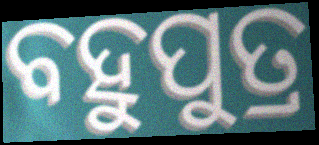
ବହୁପୁତ୍ର